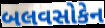
બલવસોકેન